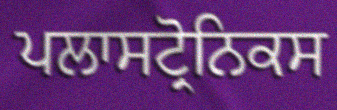
ਪਲਾਸਟ੍ਰੋਨਿਕਸ